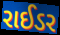
રાઈડર